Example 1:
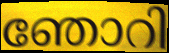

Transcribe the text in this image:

ഞോറി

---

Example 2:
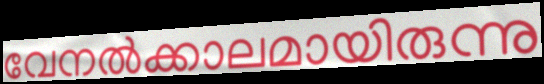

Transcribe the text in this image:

വേനൽക്കാലമായിരുന്നു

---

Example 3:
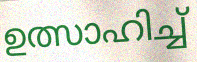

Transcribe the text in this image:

ഉത്സാഹിച്ച്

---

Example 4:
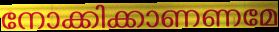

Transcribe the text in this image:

നോക്കിക്കാണണമേ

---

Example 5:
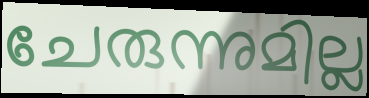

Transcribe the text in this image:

ചേരുന്നുമില്ല